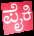
ಪೈಕಿ